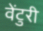
वेंटुरी